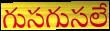
గుసగుసలే